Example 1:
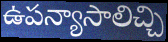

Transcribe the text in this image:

ఉపన్యాసాలిచ్చి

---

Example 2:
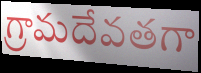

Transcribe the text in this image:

గ్రామదేవతగా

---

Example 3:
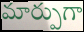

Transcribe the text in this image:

మార్పుగా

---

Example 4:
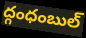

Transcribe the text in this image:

ద్గంధంబుల్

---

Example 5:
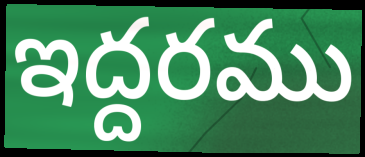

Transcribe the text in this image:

ఇద్దరము